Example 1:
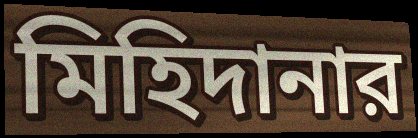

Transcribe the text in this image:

মিহিদানার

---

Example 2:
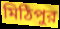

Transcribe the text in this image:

মিঠিপুর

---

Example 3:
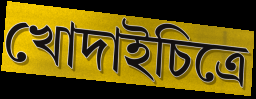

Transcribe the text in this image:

খোদাইচিত্রে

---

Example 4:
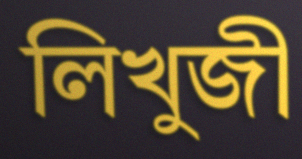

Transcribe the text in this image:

লিখুজী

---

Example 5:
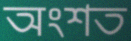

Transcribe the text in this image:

অংশত